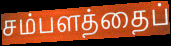
சம்பளத்தைப்